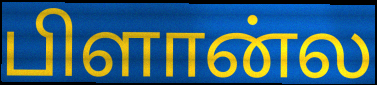
பிளான்ல